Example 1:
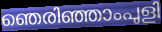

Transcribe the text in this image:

ഞെരിഞ്ഞാംപുളി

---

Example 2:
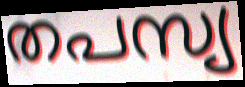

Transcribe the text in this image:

തപസ്യ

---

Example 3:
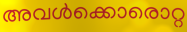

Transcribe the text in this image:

അവൾക്കൊരൊറ്റ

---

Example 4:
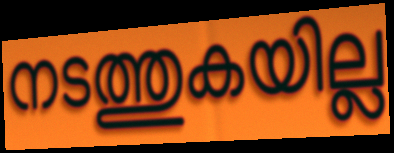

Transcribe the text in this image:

നടത്തുകയില്ല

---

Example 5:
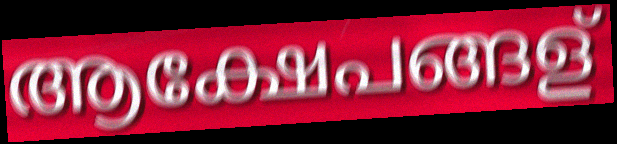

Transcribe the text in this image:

ആക്ഷേപങ്ങള്